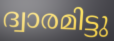
ദ്വാരമിട്ടു